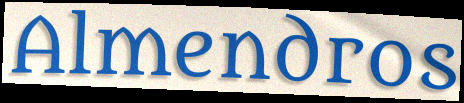
Almendros